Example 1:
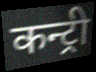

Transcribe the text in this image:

कन्ट्री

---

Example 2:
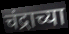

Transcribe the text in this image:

चंद्राच्या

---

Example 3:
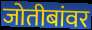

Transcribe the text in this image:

जोतीबांवर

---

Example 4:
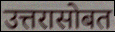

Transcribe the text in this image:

उत्तरासोबत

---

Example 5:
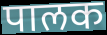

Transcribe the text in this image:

पालक